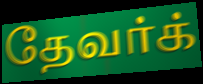
தேவர்க்